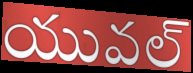
యువల్